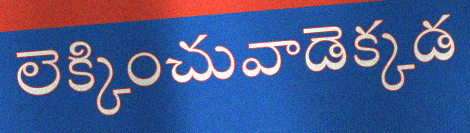
లెక్కించువాడెక్కడ